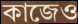
কাজেও